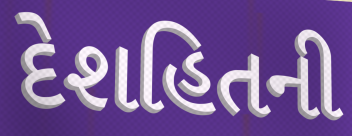
દેશહિતની